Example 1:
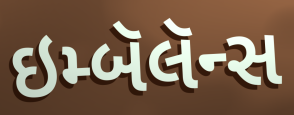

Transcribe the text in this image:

ઇમ્બૅલૅન્સ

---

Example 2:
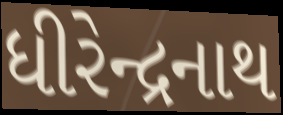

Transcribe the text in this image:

ધીરેન્દ્રનાથ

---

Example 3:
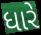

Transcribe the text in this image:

ધારે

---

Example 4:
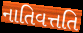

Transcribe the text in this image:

નાતિવત્તતિ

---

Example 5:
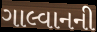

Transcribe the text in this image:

ગાલ્વાનની